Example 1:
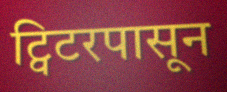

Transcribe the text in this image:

ट्विटरपासून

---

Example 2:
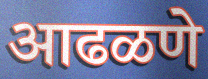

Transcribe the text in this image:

आढळणे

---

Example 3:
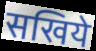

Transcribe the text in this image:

सखिये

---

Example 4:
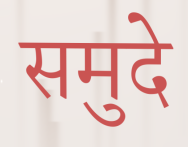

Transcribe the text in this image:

समुदे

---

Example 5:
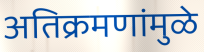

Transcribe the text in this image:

अतिक्रमणांमुळे